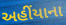
અહીંયાના